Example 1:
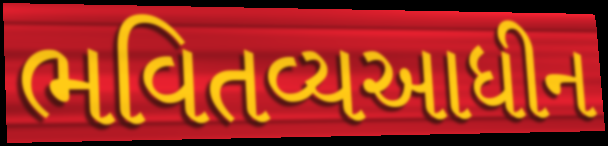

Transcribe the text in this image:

ભવિતવ્યઆધીન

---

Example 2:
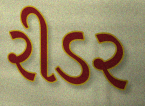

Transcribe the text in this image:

રીડર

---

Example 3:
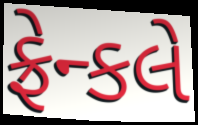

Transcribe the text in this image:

ફ્રેન્કલે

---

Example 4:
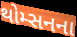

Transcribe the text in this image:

થોમ્સનના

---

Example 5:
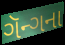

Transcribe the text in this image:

ગૅન્ગના